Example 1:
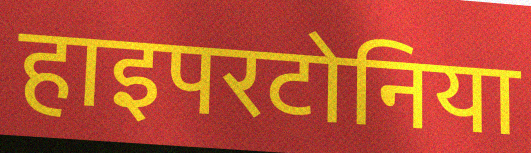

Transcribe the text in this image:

हाइपरटोनिया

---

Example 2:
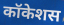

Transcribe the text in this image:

कॉकेशस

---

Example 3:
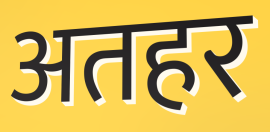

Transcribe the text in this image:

अतहर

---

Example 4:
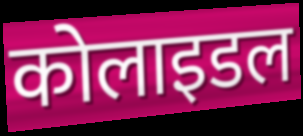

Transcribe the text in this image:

कोलाइडल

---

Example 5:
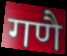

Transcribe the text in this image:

गणै